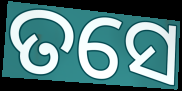
ତସେ